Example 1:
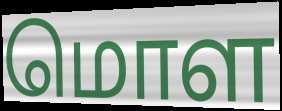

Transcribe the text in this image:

மொள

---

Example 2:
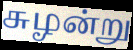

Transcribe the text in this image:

சுழன்று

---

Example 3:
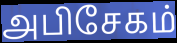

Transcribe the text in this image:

அபிசேகம்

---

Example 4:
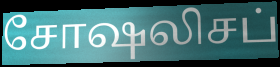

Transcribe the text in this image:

சோஷலிசப்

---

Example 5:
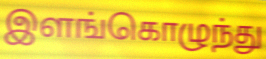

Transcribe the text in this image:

இளங்கொழுந்து